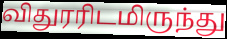
விதுரரிடமிருந்து